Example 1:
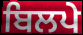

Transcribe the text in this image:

ਬਿਲਪੇ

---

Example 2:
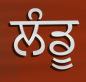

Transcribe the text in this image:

ਲੰਡੂ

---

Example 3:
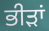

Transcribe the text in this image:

ਭੀੜਾਂ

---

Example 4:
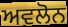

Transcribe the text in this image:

ਅਵਲੋਨ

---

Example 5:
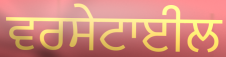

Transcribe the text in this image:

ਵਰਸੇਟਾਈਲ